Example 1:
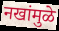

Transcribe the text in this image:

नखांमुळे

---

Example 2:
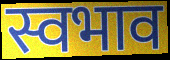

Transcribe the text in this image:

स्वभाव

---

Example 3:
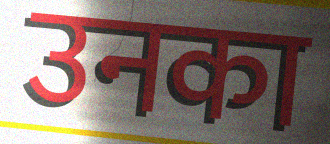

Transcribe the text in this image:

उनका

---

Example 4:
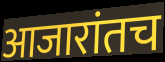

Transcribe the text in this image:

आजारांतच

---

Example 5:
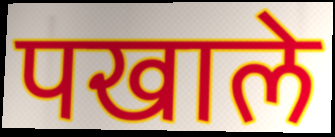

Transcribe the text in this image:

पखाले